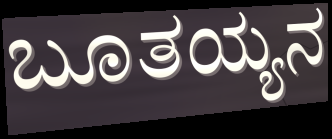
ಬೂತಯ್ಯನ